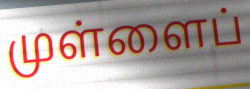
முள்ளைப்